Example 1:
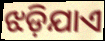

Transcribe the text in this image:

ଝଡ଼ିଯାଏ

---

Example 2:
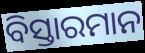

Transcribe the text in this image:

ବିସ୍ତାରମାନ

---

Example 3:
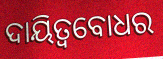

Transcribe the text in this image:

ଦାୟିତ୍ବବୋଧର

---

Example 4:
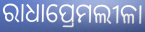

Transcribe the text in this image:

ରାଧାପ୍ରେମଲୀଳା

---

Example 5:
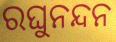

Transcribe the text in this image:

ରଘୁନନ୍ଦନ